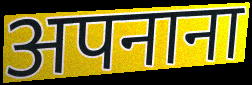
अपनाना